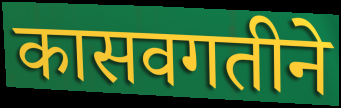
कासवगतीने